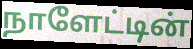
நாளேட்டின்